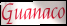
Guanaco